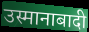
उस्मानाबादी